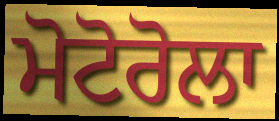
ਮੋਟੋਰੋਲਾ